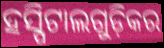
ହସ୍ପିଟାଲଗୁଡ଼ିକର